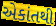
એકાંતથી